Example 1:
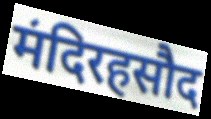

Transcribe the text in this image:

मंदिरहसौद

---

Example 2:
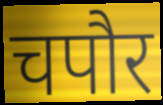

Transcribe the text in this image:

चपौर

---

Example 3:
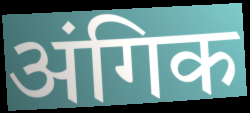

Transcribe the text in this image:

अंगिक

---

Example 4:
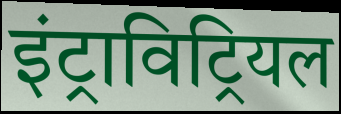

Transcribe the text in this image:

इंट्राविट्रियल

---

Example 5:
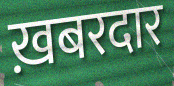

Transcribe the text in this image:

ख़बरदार